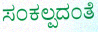
ಸಂಕಲ್ಪದಂತೆ